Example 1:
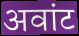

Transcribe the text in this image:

अवांट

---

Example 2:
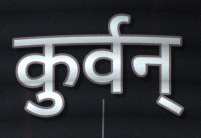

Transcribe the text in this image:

कुर्वन्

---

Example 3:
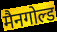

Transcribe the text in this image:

मैनगोल्ड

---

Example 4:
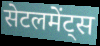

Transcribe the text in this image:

सेटलमेंट्स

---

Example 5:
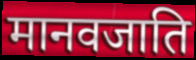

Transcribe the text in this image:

मानवजाति